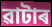
ৱাটাৰ